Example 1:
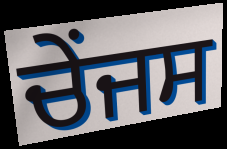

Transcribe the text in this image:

ਚੇਂਜਸ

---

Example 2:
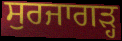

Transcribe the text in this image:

ਸੁਰਜਾਗੜ੍ਹ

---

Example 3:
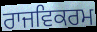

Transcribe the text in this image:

ਰਾਜਵਿਕਰਮ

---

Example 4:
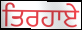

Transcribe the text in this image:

ਤਿਰਹਾਏ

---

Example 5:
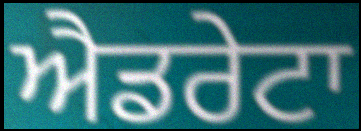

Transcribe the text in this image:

ਐਡਰੇਟਾ